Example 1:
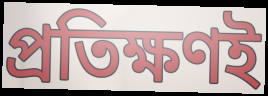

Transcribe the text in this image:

প্রতিক্ষণই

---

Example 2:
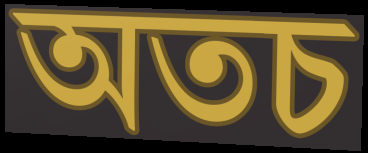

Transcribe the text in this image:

অতচ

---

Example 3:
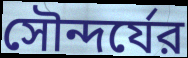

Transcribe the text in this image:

সৌন্দর্যের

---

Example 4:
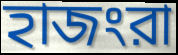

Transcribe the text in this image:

হাজংরা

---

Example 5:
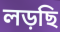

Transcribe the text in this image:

লড়ছি